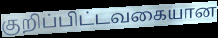
குறிப்பிட்டவகையான